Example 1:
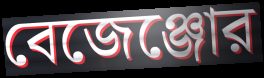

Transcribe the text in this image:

বেজেঞ্জোর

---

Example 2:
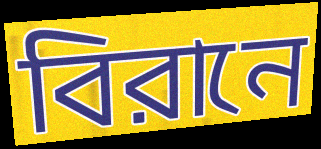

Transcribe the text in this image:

বিরানে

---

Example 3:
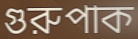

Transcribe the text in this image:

গুরুপাক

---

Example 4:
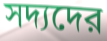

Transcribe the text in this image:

সদ্যদের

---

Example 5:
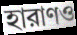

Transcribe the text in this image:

হারাণও